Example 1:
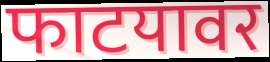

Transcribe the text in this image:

फाटयावर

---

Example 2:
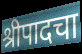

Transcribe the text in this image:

श्रीपादचा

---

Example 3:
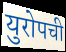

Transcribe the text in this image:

युरोपची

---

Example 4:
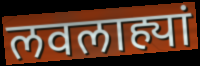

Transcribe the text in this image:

लवलाह्यां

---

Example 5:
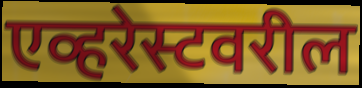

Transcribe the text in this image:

एव्हरेस्टवरील